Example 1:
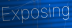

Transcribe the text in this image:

Exposing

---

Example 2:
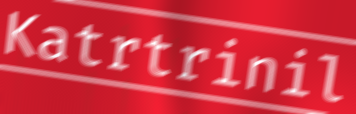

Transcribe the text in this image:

Katrtrinil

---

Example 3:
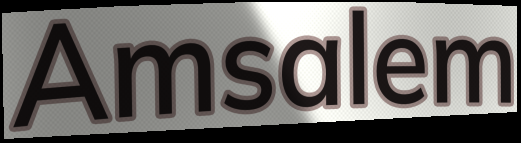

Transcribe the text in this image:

Amsalem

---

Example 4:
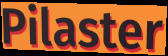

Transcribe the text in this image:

Pilaster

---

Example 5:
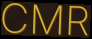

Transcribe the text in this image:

CMR